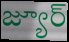
జ్యూర్